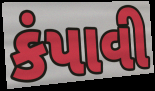
કંપાવી